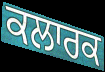
ਕਲਾਰਕ